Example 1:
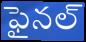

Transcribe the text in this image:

ఫైనల్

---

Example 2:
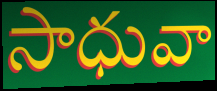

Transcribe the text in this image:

సాధువా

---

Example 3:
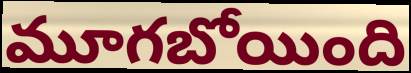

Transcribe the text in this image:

మూగబోయింది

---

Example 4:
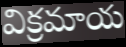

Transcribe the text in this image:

విక్రమాయ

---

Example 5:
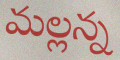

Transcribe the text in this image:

మల్లన్న